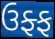
ઉફ્ફ